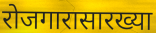
रोजगारासारख्या